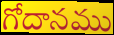
గోదానము